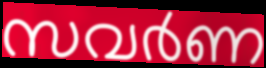
സവർണ